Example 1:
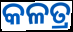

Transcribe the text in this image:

କଳତ୍ର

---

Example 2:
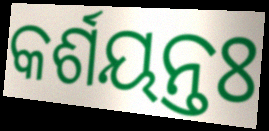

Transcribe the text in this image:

କର୍ଶୟନ୍ତଃ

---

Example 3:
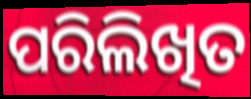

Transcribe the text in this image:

ପରିଲିଖିତ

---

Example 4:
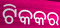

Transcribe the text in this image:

ଟିକକର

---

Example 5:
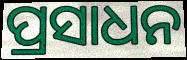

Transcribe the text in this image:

ପ୍ରସାଧନ